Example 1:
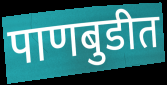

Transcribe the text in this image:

पाणबुडीत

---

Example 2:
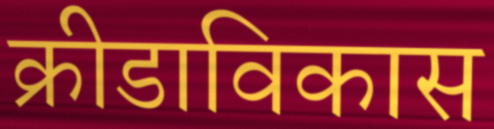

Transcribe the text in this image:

क्रीडाविकास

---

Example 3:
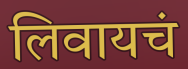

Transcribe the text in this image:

लिवायचं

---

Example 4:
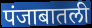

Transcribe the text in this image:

पंजाबातली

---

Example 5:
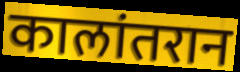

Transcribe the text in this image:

कालांतरान